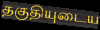
தகுதியுடைய